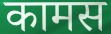
कामस